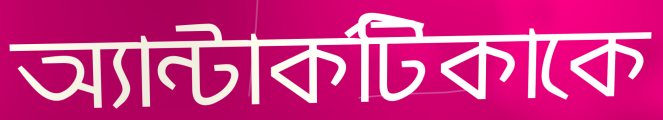
অ্যান্টার্কটিকাকে